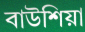
বাউশিয়া